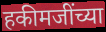
हकीमजींच्या